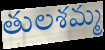
తులశమ్మ